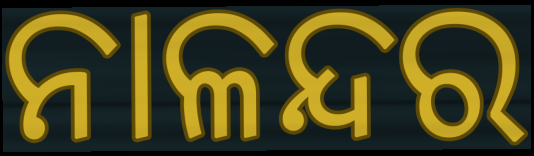
ନାଳନ୍ଦର